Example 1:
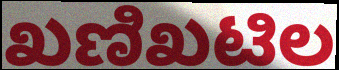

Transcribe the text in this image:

ಖಣಿಖಟಿಲ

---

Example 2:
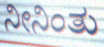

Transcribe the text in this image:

ನೀನಿಂತು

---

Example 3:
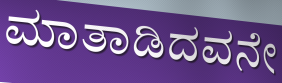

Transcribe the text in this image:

ಮಾತಾಡಿದವನೇ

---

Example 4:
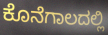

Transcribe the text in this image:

ಕೊನೆಗಾಲದಲ್ಲಿ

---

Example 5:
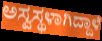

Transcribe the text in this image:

ಅಸ್ವಸ್ಥಳಾಗಿದ್ದಾಳೆ